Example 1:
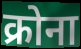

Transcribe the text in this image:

क्रोना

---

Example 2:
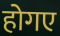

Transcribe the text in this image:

होगए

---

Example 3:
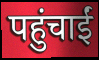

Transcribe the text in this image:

पहुंचाईं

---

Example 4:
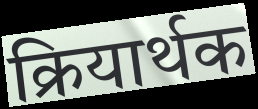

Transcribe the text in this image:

क्रियार्थक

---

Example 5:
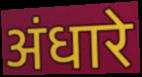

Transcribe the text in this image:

अंधारे